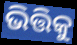
ଭିତ୍ତିକୁ